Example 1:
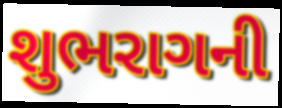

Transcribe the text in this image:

શુભરાગની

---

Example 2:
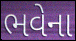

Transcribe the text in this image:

ભવેના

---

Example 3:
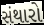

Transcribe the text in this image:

સંથારો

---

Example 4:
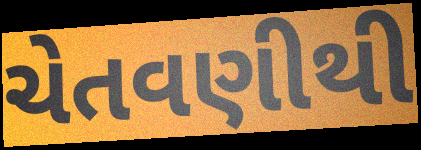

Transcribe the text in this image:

ચેતવણીથી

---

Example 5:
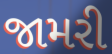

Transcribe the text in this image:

જામરી